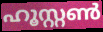
ഹൂസ്റ്റൺ